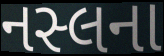
નસ્લના